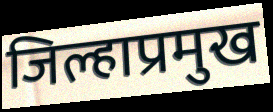
जिल्हाप्रमुख